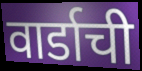
वार्डाची